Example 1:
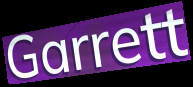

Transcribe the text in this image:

Garrett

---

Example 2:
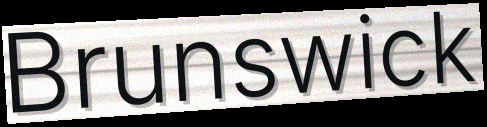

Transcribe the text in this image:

Brunswick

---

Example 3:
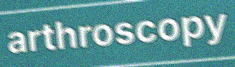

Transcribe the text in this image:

arthroscopy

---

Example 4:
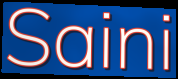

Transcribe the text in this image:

Saini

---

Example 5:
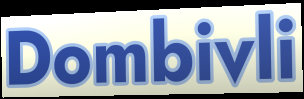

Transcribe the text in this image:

Dombivli